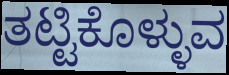
ತಟ್ಟಿಕೊಳ್ಳುವ